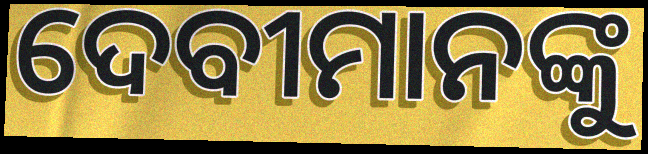
ଦେବୀମାନଙ୍କୁ